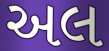
અલ